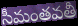
సీమంతవతీ